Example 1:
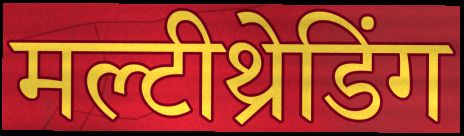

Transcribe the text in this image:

मल्टीथ्रेडिंग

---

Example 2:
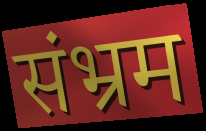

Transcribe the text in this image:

संभ्रम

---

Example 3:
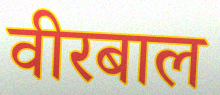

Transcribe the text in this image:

वीरबाल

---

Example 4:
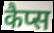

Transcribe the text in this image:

कैप्स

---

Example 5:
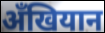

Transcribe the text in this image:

अँखियान